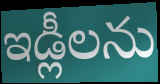
ఇడ్లీలను